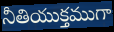
నీతియుక్తముగా